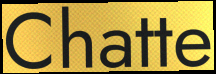
Chatte